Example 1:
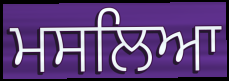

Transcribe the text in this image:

ਮਸਲਿਆ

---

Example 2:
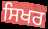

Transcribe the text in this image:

ਸਿਖਰ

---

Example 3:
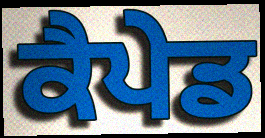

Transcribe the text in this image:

ਕੈਪੇਡ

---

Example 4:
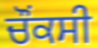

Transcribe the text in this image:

ਚੌਂਕਸੀ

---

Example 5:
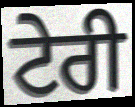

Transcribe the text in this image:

ਟੇਰੀ